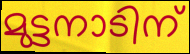
മുട്ടനാടിന്